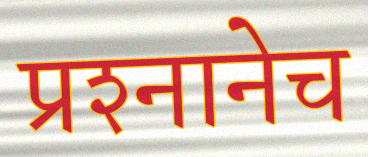
प्रश्नानेच